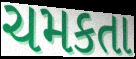
ચમકતા